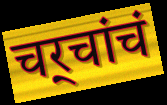
चर्चांचं